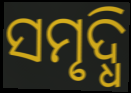
ସମୃଦ୍ଧି